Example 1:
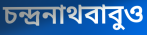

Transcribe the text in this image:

চন্দ্রনাথবাবুও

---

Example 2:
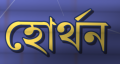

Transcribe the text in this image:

হোর্থন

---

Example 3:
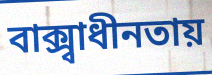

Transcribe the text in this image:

বাক্স্বাধীনতায়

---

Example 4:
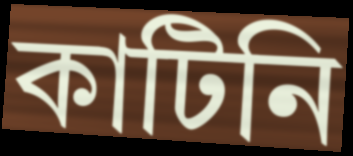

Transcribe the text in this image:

কাটিনি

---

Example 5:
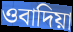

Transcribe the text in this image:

ওবাদিয়া